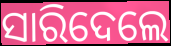
ସାରିଦେଲେ